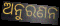
ଅନୁରଣନ